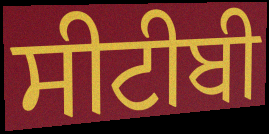
ਸੀਟੀਬੀ